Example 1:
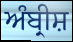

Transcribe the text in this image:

ਅੰਬ੍ਰੀਸ਼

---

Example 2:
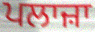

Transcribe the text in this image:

ਪਲਾਜ਼ਾ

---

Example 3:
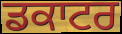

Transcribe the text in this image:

ਡਕਾਟਰ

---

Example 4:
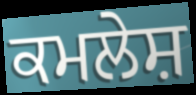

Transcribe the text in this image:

ਕਮਲੇਸ਼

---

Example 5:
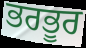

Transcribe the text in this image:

ਭਰਭੂਰ